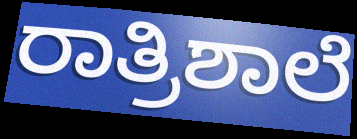
ರಾತ್ರಿಶಾಲೆ